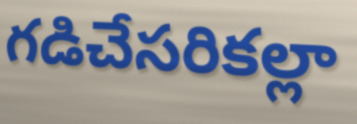
గడిచేసరికల్లా